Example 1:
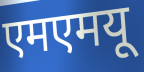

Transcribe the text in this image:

एमएमयू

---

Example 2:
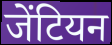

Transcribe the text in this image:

जेंटियन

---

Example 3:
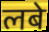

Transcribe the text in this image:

लबे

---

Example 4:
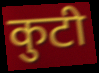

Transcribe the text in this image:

कुटी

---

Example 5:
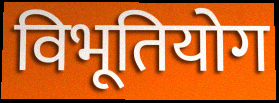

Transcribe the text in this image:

विभूतियोग